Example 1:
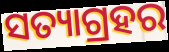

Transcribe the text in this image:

ସତ୍ୟାଗ୍ରହର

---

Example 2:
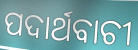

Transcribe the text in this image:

ପଦାର୍ଥବାଚୀ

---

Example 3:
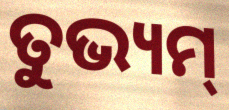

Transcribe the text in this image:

ତୁଭ୍ୟମ୍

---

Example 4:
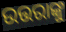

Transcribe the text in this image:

ଉତ୍ତରାଙ୍କୁ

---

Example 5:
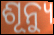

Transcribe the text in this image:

ଶୂନ୍ୟୁ